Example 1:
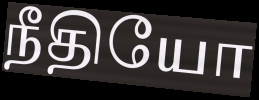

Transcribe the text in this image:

நீதியோ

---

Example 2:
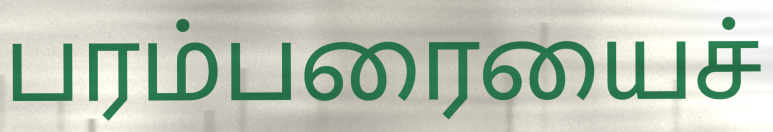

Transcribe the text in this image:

பரம்பரையைச்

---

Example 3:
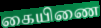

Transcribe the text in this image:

கையிணை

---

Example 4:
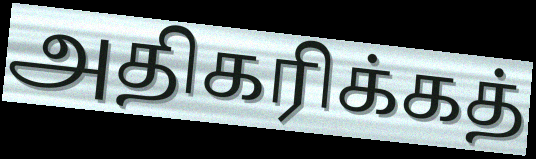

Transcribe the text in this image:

அதிகரிக்கத்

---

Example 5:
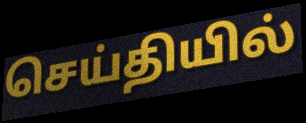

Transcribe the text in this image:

செய்தியில்